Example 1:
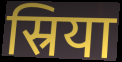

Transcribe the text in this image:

स्रिया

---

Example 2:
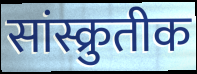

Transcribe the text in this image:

सांस्क्रुतीक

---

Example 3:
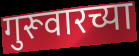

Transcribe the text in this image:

गुरूवारच्या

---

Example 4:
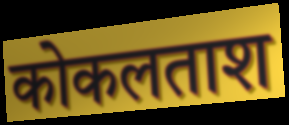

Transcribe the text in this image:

कोकलताश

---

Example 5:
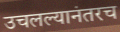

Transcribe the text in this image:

उचलल्यानंतरच